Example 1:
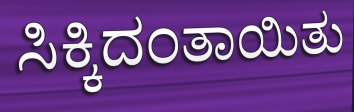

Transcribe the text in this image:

ಸಿಕ್ಕಿದಂತಾಯಿತು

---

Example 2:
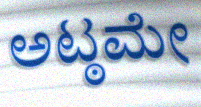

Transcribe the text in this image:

ಅಟ್ಠಮೇ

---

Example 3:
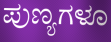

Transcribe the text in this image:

ಪುಣ್ಯಗಳೂ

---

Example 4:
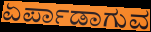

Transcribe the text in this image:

ಏರ್ಪಾಡಾಗುವ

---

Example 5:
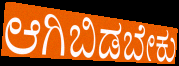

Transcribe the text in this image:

ಆಗಿಬಿಡಬೇಕು